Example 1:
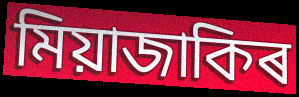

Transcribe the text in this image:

মিয়াজাকিৰ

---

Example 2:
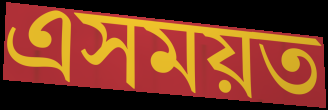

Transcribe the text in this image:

এসময়ত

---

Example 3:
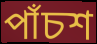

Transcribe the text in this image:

পাঁচশ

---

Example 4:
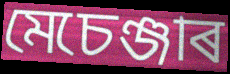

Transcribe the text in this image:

মেচেঞ্জাৰ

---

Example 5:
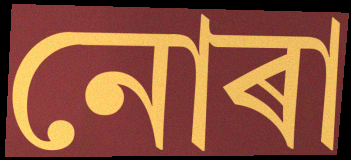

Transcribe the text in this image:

নোৰা